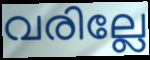
വരില്ലേ